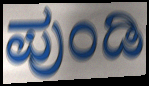
ಪುಂಡಿ